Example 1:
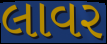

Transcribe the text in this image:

લાવર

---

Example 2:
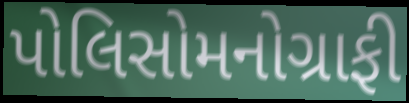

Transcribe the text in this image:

પોલિસોમનોગ્રાફી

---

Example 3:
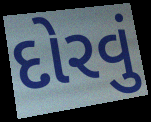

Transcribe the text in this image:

દોરવું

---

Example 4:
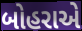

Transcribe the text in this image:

બોહરાએ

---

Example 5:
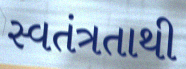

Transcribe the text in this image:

સ્વતંત્રતાથી